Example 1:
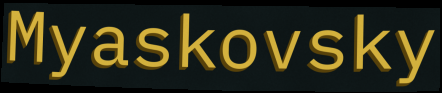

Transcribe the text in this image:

Myaskovsky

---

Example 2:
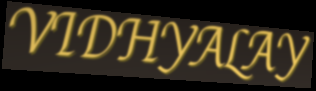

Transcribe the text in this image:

VIDHYALAY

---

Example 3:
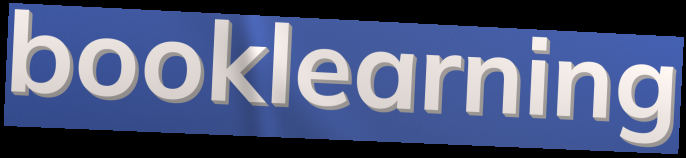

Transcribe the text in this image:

booklearning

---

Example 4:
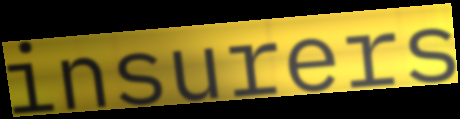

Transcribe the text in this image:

insurers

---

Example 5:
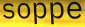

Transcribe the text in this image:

soppe